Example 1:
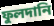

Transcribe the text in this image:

ফুলদানি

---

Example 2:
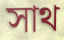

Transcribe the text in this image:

সাথ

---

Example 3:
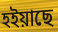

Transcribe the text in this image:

হইয়াছে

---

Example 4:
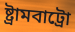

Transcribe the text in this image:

ষ্ট্ৰামবাট্ৰো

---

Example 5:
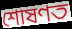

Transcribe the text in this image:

শোষণত